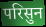
परिसुन